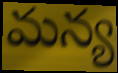
మన్య